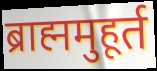
ब्राह्ममुहूर्त